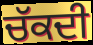
ਚੱਕਦੀ